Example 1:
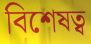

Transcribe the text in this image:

বিশেষত্ব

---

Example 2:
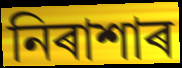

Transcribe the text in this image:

নিৰাশাৰ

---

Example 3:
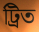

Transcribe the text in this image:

ট্ৰিত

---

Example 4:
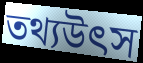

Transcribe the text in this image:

তথ্যউৎস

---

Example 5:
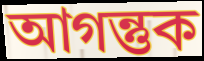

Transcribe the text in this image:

আগন্তুক